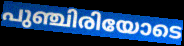
പുഞ്ചിരിയോടെ